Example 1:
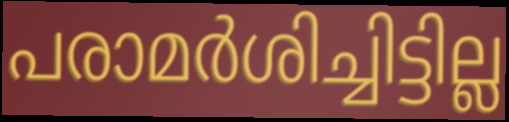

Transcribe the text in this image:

പരാമർശിച്ചിട്ടില്ല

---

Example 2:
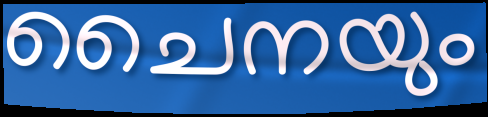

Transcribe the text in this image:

ചൈനയും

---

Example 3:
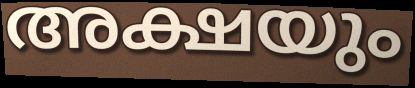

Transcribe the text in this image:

അക്ഷയും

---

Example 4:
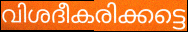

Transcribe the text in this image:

വിശദീകരിക്കട്ടെ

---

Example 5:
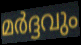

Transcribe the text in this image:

മർദ്ദവും